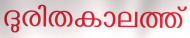
ദുരിതകാലത്ത്